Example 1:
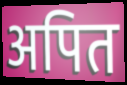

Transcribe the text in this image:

अपित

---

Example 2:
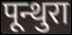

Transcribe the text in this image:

पून्थुरा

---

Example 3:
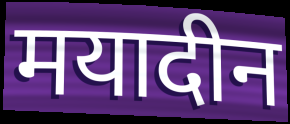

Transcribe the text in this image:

मयादीन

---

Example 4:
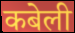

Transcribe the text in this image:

कबेली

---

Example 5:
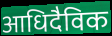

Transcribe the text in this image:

आधिदैविक